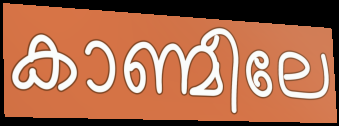
കാണ്മീലേ